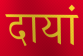
दायां